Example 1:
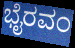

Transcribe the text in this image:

ಭೈರವಂ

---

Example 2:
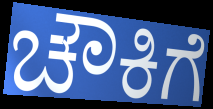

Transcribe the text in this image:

ಚೌಕಿಗೆ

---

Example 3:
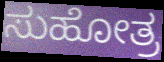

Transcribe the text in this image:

ಸುಹೋತ್ರ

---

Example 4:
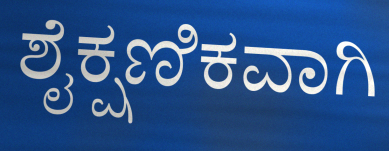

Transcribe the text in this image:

ಶೈಕ್ಷಣಿಕವಾಗಿ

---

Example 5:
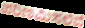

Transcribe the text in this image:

ಪರಿಣಮಿಸಲಿವೆ